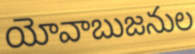
యోవాబుజనుల